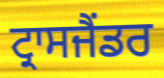
ਟ੍ਰਾਸਜੈਂਡਰ